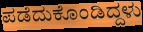
ಪಡೆದುಕೊಂಡಿದ್ದಳು